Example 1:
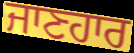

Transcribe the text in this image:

ਜਾਣਹਾਰ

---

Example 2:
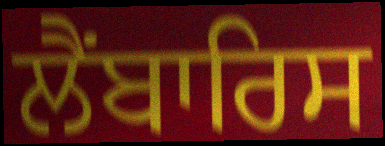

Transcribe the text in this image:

ਲੈਂਬਾਰਿਸ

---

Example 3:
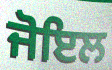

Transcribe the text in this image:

ਜੋਇਲ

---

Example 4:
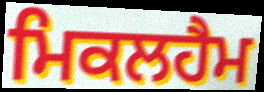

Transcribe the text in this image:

ਮਿਕਲਹੈਮ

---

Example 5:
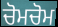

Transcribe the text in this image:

ਚੋਮਚੋਮ